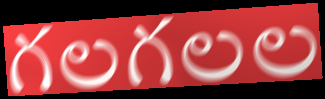
గలగలల